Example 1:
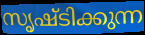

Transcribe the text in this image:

സൃഷ്ടിക്കുന്ന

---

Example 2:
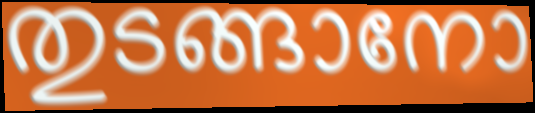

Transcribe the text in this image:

തുടങ്ങാനോ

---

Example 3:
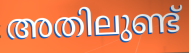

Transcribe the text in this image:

അതിലുണ്ട്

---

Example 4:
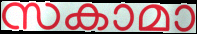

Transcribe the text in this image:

സകാമാ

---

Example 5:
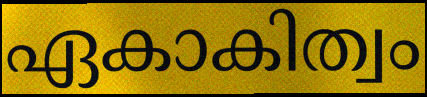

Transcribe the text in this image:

ഏകാകിത്വം